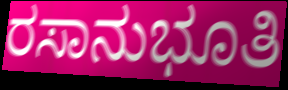
ರಸಾನುಭೂತಿ